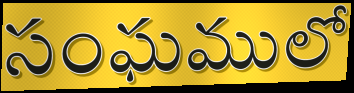
సంఘములో